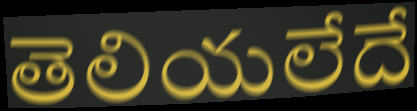
తెలియలేదే